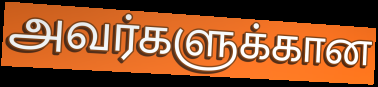
அவர்களுக்கான